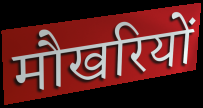
मौखरियों